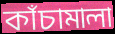
কাঁচামালা